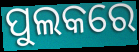
ପୁଲକରେ